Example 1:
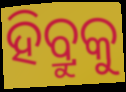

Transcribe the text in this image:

ହିବ୍ରୁକୁ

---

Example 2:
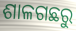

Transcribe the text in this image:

ଶାଳଗଛରୁ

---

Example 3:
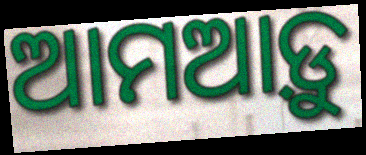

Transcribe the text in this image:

ଆମଆଡ଼ୁ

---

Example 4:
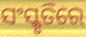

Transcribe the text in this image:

ସଂସ୍କୃତିରେ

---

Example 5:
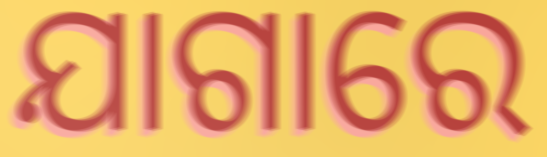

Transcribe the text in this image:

ଯାଗାରେ